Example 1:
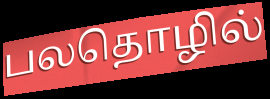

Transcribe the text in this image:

பலதொழில்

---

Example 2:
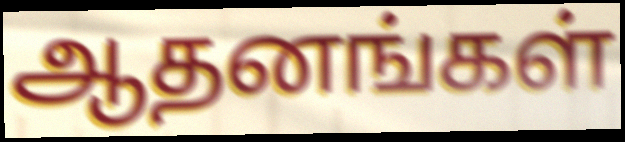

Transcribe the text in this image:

ஆதனங்கள்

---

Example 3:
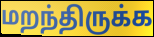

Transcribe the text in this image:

மறந்திருக்க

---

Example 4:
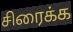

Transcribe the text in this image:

சிரைக்க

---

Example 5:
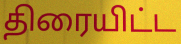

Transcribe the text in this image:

திரையிட்ட